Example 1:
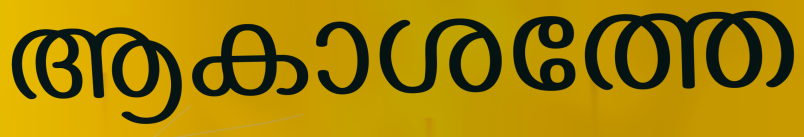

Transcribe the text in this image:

ആകാശത്തേ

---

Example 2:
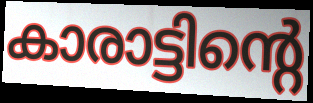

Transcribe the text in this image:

കാരാട്ടിന്റെ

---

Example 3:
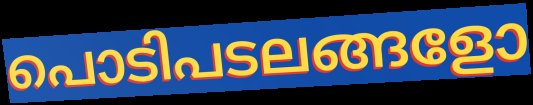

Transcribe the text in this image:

പൊടിപടലങ്ങളോ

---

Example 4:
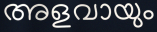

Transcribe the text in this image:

അളവായും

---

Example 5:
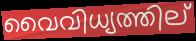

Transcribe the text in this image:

വൈവിധ്യത്തില്